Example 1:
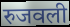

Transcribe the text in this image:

रुजवली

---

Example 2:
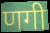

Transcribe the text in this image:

णगी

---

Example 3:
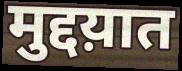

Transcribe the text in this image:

मुद्दय़ात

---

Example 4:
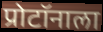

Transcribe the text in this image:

प्रोटॉनाला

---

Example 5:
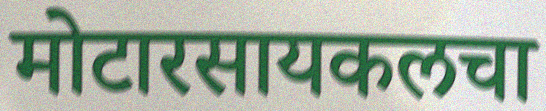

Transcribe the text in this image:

मोटारसायकलचा